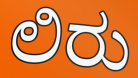
ಲಿರು